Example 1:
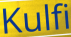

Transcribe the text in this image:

Kulfi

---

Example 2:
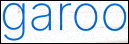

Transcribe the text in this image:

garoo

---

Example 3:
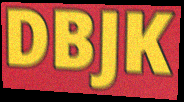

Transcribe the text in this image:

DBJK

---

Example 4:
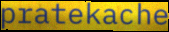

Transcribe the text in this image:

pratekache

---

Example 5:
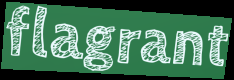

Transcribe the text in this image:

flagrant